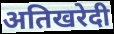
अतिखरेदी